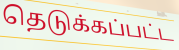
தெடுக்கப்பட்ட